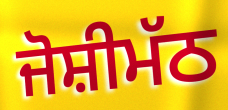
ਜੋਸ਼ੀਮੱਠ